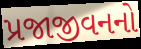
પ્રજાજીવનનો